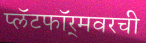
प्लॅटफॉर्मवरची